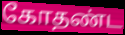
கோதண்ட